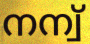
നന്വ്